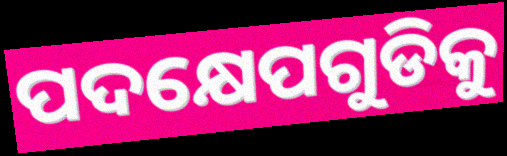
ପଦକ୍ଷେପଗୁଡିକୁ